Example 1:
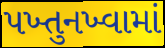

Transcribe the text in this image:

પખ્તુનખ્વામાં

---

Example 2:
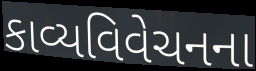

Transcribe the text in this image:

કાવ્યવિવેચનના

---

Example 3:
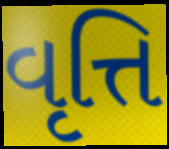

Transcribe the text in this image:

વૃત્તિ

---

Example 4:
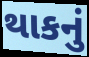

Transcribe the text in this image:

થાકનું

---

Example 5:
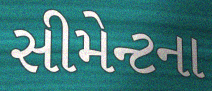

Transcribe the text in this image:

સીમેન્ટના